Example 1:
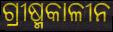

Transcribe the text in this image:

ଗ୍ରୀଷ୍ମକାଳୀନ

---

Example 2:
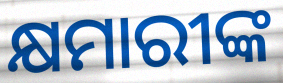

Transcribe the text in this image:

କ୍ଷମାରୀଙ୍କ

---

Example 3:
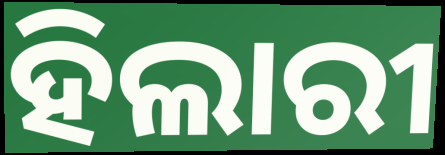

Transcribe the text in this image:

ହିଲାରୀ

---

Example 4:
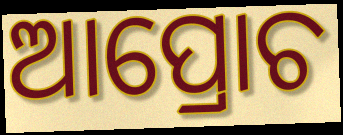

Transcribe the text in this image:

ଆପ୍ରୋଚ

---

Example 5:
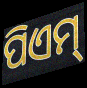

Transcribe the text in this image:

ପିଏମ୍